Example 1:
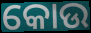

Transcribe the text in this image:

କୋଉ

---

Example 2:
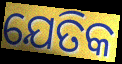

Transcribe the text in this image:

ଯେତିକ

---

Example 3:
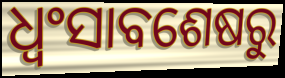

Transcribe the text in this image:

ଧ୍ୱଂସାବଶେଷରୁ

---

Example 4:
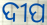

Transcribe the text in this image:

ଦୀପ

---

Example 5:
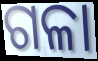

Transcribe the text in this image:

ଗଳା